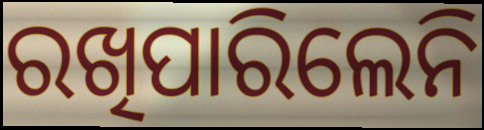
ରଖିପାରିଲେନି